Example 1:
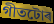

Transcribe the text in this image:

গীতটোৰ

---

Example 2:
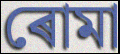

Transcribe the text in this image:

ৰোমা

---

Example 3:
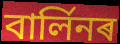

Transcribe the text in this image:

বাৰ্লিনৰ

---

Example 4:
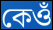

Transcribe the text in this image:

কেওঁ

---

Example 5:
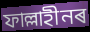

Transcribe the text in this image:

ফাল্লাহীনৰ